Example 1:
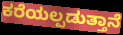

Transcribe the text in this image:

ಕರೆಯಲ್ಪಡುತ್ತಾನೆ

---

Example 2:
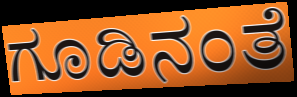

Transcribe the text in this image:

ಗೂಡಿನಂತೆ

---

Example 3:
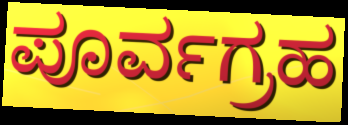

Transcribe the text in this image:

ಪೂರ್ವಗ್ರಹ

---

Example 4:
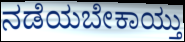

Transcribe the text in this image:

ನಡೆಯಬೇಕಾಯ್ತು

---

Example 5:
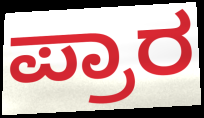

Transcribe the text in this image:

ಪ್ರಾರ